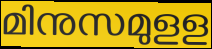
മിനുസമുളള